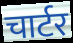
चार्टर